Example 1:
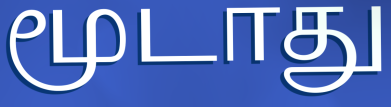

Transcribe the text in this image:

மூடாது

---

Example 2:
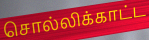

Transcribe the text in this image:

சொல்லிக்காட்ட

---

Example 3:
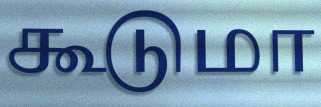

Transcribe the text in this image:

கூடுமா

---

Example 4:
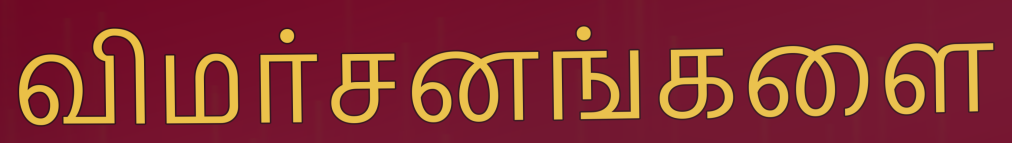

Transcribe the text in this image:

விமர்சனங்களை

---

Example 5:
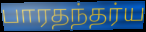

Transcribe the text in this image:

பாரதந்தர்ய